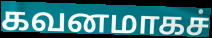
கவனமாகச்